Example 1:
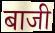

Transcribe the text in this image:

बाजी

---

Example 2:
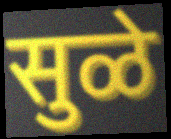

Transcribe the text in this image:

सुळे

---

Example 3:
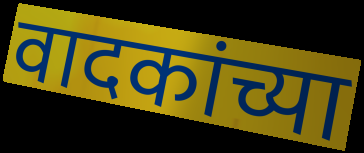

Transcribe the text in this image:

वादकांच्या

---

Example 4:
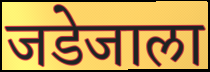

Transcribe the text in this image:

जडेजाला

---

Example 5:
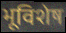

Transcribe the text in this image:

भूविशेष